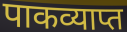
पाकव्याप्त